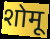
शोमू